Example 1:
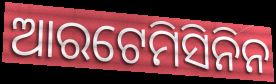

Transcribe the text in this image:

ଆରଟେମିସିନିନ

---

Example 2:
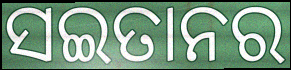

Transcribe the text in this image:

ସଇତାନର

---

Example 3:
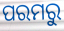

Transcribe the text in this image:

ପରମରୁ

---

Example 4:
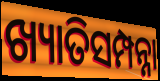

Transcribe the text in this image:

ଖ୍ୟାତିସମ୍ପନ୍ନା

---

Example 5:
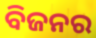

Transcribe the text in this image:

ବିଜନର